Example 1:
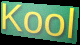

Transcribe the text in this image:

Kool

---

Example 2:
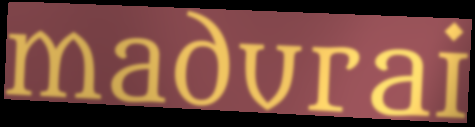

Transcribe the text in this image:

madurai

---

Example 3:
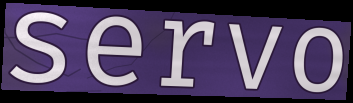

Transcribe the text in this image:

servo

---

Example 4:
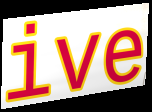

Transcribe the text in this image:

ive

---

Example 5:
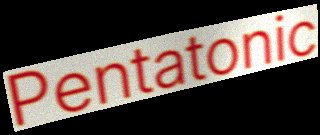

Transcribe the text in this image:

Pentatonic